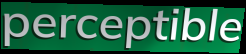
perceptible